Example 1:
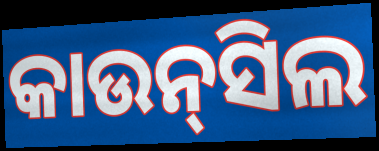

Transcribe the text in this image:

କାଉନ୍‍ସିଲ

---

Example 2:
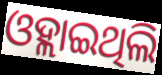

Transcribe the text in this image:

ଓହ୍ଲାଇଥିଲି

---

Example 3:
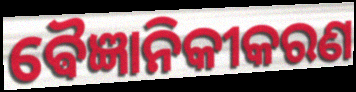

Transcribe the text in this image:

ଵୈଜ୍ଞାନିକୀକରଣ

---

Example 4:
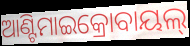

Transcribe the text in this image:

ଆଣ୍ଟିମାଇକ୍ରୋବାୟଲ୍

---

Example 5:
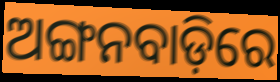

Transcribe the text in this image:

ଅଙ୍ଗନବାଡ଼ିରେ